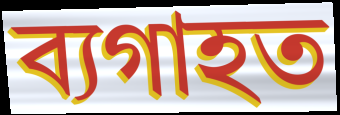
ব্যগাহত